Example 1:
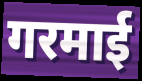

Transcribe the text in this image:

गरमाई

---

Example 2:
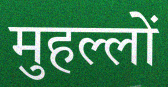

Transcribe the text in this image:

मुहल्लों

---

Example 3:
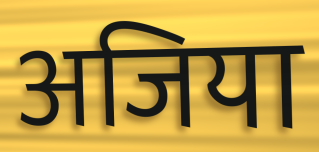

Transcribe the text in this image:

अजिया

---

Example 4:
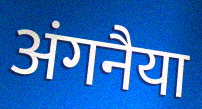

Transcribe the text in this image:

अंगनैया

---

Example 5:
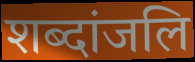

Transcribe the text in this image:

शब्दांजलि